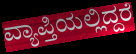
ವ್ಯಾಪ್ತಿಯಲ್ಲಿದ್ದರೆ